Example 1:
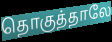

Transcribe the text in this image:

தொகுத்தாலே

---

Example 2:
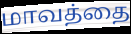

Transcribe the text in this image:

மாவத்தை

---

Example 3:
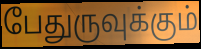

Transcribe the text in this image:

பேதுருவுக்கும்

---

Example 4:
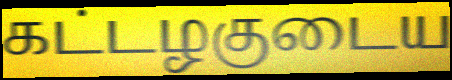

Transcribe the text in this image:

கட்டழகுடைய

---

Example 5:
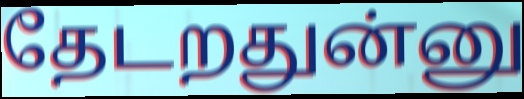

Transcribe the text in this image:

தேடறதுன்னு